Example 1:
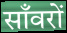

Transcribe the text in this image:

साँवरों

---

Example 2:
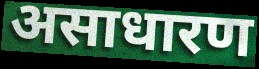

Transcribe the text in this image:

असाधारण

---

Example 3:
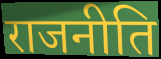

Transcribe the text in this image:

राजनीति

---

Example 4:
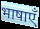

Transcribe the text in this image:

भाषाएँ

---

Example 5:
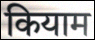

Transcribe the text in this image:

कियाम